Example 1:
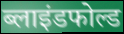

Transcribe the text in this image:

ब्लाइंडफोल्ड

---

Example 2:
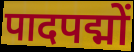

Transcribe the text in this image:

पादपद्मों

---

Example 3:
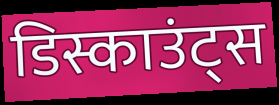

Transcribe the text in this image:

डिस्काउंट्स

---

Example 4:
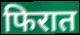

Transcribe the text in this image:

फिरात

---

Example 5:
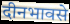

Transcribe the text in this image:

दीनभावसे